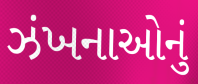
ઝંખનાઓનું